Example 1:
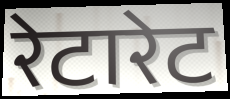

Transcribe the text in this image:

रेटारेट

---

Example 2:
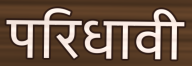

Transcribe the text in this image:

परिधावी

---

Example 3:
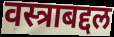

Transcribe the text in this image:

वस्त्राबद्दल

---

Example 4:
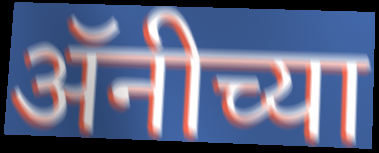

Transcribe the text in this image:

ॲनीच्या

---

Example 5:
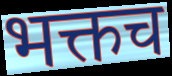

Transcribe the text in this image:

भक्तच